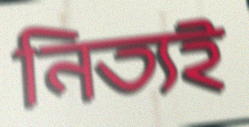
নিত্যই